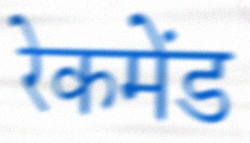
रेकमेंड